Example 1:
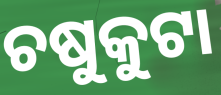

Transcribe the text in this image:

ଚଷୁକୁଟା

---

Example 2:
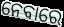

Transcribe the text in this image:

ନେବାରେ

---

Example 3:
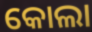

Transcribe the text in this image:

କୋଲା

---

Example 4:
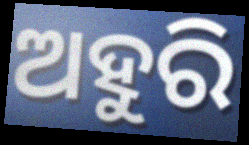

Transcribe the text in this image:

ଅହୁରି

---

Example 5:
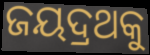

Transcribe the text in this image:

ଜୟଦ୍ରଥକୁ